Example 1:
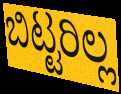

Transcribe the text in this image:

ಬಿಟ್ಟರಿಲ್ಲ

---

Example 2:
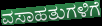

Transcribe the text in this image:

ವಸಾಹತುಗಳಿಗೆ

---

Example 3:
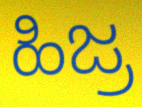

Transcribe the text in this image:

ಹಿಜ್ರ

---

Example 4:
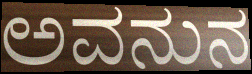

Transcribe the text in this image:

ಅವನುನ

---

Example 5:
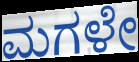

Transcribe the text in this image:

ಮಗಳೇ